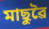
মাছুৱৈ